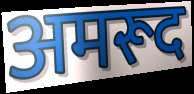
अमरूद